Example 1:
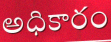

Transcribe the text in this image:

అధికారం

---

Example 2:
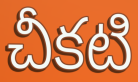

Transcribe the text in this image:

చీకటి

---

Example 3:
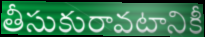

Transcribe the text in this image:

తీసుకురావటానికీ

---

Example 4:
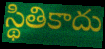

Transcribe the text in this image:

స్థితికాదు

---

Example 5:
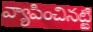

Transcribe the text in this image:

వ్యాపించినట్టి